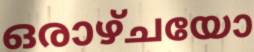
ഒരാഴ്ചയോ